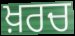
ਖ਼ਰਚ